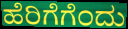
ಹೆರಿಗೆಗೆಂದು